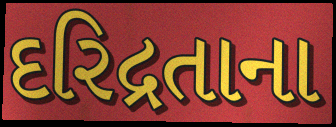
દરિદ્રતાના